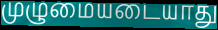
முழுமையடையாது